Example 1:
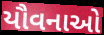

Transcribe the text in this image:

યૌવનાઓ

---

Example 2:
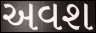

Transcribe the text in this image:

અવશ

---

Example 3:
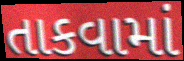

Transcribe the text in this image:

તાકવામાં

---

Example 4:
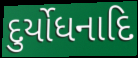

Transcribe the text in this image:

દુર્યોધનાદિ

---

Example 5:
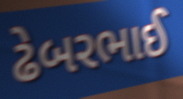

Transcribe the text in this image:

ઢેબરભાઈ